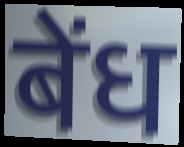
बेंध